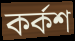
কৰ্কশ